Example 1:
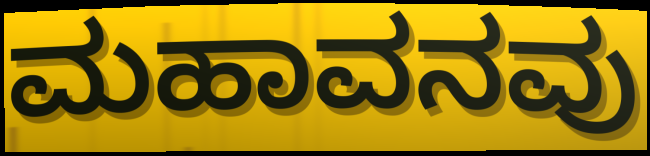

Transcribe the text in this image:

ಮಹಾವನವು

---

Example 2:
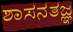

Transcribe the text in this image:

ಶಾಸನತಜ್ಞ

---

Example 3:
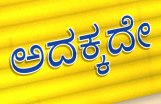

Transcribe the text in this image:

ಅದಕ್ಕದೇ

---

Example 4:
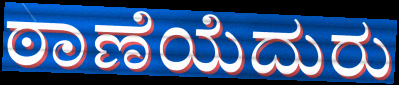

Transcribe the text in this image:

ಠಾಣೆಯೆದುರು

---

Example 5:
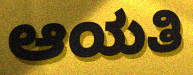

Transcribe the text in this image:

ಆಯತಿ